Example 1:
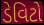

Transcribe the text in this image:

ડેવિટો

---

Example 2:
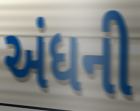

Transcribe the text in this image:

અંધની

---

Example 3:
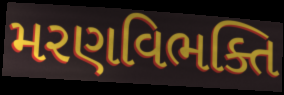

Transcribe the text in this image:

મરણવિભક્તિ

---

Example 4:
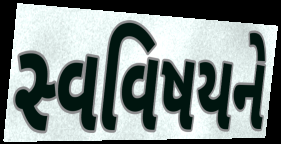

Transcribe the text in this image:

સ્વવિષયને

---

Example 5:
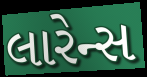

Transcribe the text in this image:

લારેન્સ